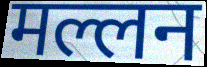
मल्लन